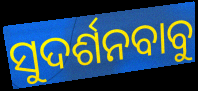
ସୁଦର୍ଶନବାବୁ